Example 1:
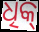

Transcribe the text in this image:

ଧିକ୍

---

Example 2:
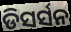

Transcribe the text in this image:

ଡିସର୍ସନ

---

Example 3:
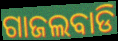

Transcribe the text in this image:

ଗାଜଲବାଡି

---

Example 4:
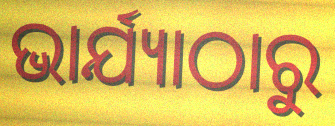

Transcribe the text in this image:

ଭାର୍ଯ୍ୟାଠାରୁ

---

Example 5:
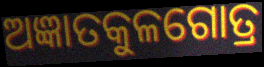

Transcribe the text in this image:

ଅଜ୍ଞାତକୁଳଗୋତ୍ର